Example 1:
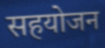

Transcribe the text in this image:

सहयोजन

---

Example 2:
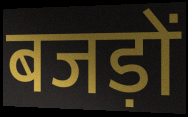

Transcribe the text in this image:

बजड़ों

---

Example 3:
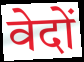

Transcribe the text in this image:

वेदों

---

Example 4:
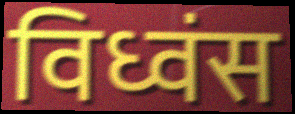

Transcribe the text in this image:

विध्वंस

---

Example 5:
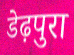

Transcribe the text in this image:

डेढ़पुरा